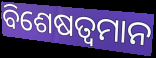
ବିଶେଷତ୍ଵମାନ